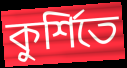
কুর্শিতে